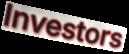
Investors